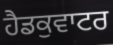
ਹੈਡਕੁਵਾਟਰ